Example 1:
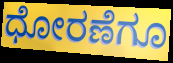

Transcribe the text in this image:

ಧೋರಣೆಗೂ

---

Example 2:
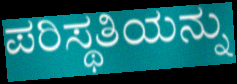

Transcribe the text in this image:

ಪರಿಸ್ಥತಿಯನ್ನು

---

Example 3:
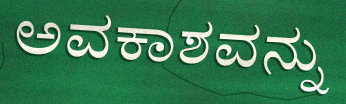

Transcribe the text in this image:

ಅವಕಾಶವನ್ನು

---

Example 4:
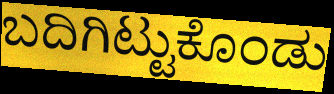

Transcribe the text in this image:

ಬದಿಗಿಟ್ಟುಕೊಂಡು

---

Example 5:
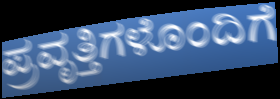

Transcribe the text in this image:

ಪ್ರವೃತ್ತಿಗಳೊಂದಿಗೆ